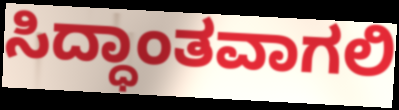
ಸಿದ್ಧಾಂತವಾಗಲಿ